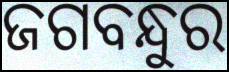
ଜଗବନ୍ଧୁର